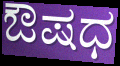
ಔಷಧ